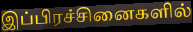
இப்பிரச்சினைகளில்